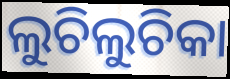
ଲୁଚିଲୁଚିକା